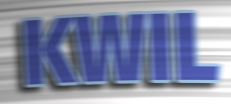
KWIL